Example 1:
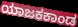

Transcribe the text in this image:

ಯಾಜಕಕಾಂಡ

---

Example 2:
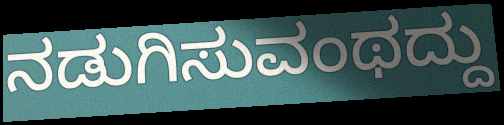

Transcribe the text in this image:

ನಡುಗಿಸುವಂಥದ್ದು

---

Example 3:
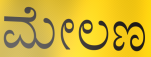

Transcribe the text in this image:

ಮೇಲಣ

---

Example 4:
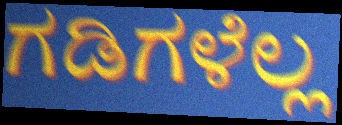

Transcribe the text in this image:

ಗಡಿಗಳೆಲ್ಲ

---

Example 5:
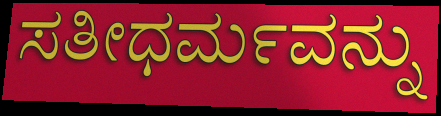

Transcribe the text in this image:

ಸತೀಧರ್ಮವನ್ನು